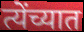
त्येंच्यात